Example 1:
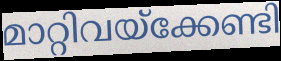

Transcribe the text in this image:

മാറ്റിവയ്ക്കേണ്ടി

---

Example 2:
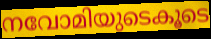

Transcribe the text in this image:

നവോമിയുടെകൂടെ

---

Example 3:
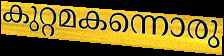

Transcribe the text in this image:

കുറ്റമകന്നൊരു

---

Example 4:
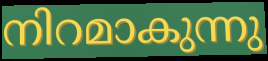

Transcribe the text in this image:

നിറമാകുന്നു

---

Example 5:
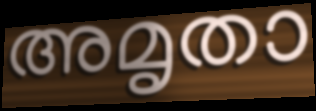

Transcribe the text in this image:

അമൃതാ